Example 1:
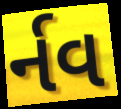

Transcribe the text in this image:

ર્નવ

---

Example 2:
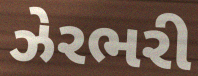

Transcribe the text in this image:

ઝેરભરી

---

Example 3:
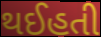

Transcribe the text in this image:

થઈહતી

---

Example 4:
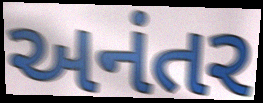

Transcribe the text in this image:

અનંતર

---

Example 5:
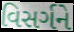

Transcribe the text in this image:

વિસર્ગને